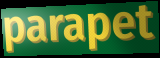
parapet